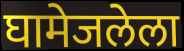
घामेजलेला